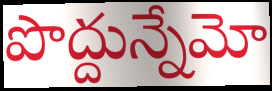
పొద్దున్నేమో